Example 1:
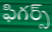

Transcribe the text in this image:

ఫిగర్స్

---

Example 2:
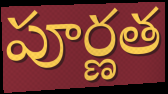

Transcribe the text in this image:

పూర్ణత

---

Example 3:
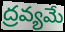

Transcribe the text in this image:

ద్రవ్యమే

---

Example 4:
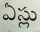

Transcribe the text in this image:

ఏస్లు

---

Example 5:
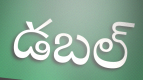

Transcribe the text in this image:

డబల్